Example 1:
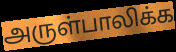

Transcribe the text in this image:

அருள்பாலிக்க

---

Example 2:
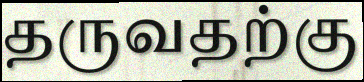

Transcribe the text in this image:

தருவதற்கு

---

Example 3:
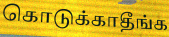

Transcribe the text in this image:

கொடுக்காதீங்க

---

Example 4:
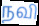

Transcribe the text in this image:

நவி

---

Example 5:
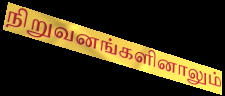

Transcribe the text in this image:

நிறுவனங்களினாலும்